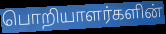
பொறியாளர்களின்